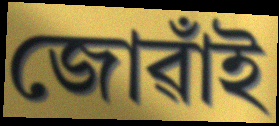
জোৱাঁই